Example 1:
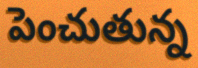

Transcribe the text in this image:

పెంచుతున్న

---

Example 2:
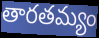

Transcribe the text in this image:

తారతమ్యం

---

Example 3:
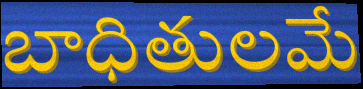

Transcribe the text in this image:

బాధితులమే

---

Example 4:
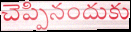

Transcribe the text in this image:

చెప్పినందుకు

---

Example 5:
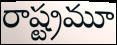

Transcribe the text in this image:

రాష్ట్రమూ